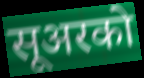
सूअरको